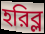
হরিব্ল